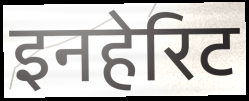
इनहेरिट